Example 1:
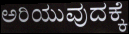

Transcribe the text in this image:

ಅರಿಯುವುದಕ್ಕೆ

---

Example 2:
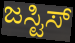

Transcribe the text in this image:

ಜಸ್ಟಿಸ್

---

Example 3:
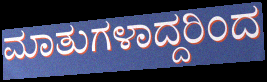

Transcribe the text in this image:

ಮಾತುಗಳಾದ್ದರಿಂದ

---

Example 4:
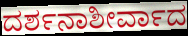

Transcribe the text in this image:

ದರ್ಶನಾಶೀರ್ವಾದ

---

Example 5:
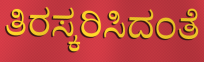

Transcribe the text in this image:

ತಿರಸ್ಕರಿಸಿದಂತೆ